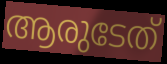
ആരുടേത്